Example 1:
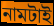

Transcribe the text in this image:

নামটাই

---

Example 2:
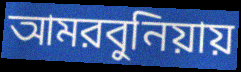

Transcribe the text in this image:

আমরবুনিয়ায়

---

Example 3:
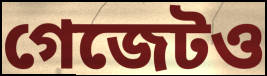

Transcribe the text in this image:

গেজেটও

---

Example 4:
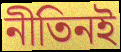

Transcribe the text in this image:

নীতিনই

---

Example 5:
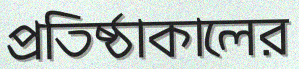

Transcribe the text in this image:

প্রতিষ্ঠাকালের